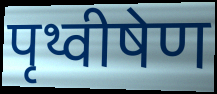
पृथ्वीषेण